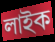
লাইক